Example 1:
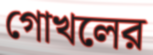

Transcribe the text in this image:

গোখলের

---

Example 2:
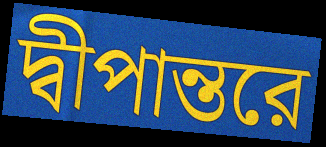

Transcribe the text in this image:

দ্বীপান্তরে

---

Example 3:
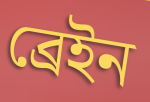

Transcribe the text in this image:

ব্রেইন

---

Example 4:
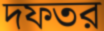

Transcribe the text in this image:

দফতর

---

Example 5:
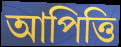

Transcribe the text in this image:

আপিত্তি